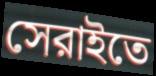
সেরাইতে